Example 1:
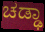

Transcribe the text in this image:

ಚಡ್ಢಾ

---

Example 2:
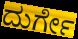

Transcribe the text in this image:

ದುರ್ಗೇ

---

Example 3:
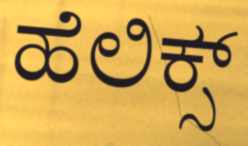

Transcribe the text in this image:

ಹೆಲಿಕ್ಸ್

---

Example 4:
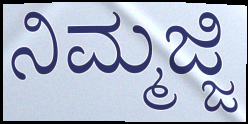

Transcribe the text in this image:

ನಿಮ್ಮಜ್ಜಿ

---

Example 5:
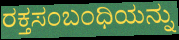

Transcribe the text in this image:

ರಕ್ತಸಂಬಂಧಿಯನ್ನು